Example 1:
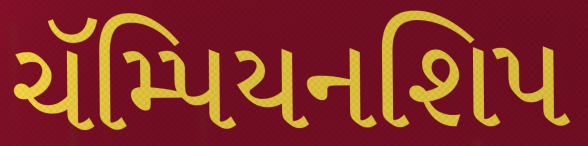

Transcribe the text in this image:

ચૅમ્પિયનશિપ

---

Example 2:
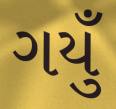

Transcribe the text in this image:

ગયુઁ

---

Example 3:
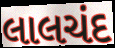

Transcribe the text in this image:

લાલચંદ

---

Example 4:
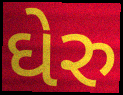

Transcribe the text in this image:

ઘેરુ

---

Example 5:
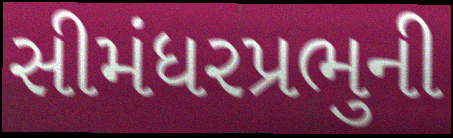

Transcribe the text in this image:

સીમંધરપ્રભુની